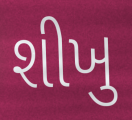
શીખુ